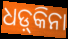
ଧଡ଼୍‍କିନା